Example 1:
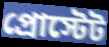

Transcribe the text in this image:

প্রোস্টেট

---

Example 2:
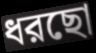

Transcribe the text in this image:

ধরছো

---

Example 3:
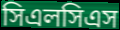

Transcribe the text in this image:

সিএলসিএস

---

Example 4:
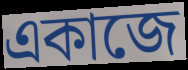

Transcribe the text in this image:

একাজে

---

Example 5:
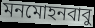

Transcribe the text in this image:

মনমোহনবাবু